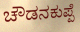
ಚೌಡನಕುಪ್ಪೆ